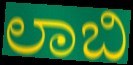
ಲಾಬಿ